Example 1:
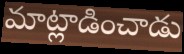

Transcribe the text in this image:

మాట్లాడించాడు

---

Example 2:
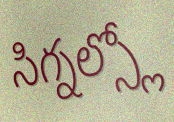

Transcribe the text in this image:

సిగ్నల్స్లో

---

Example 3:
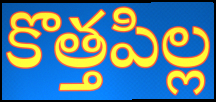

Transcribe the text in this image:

కొత్తపిల్ల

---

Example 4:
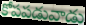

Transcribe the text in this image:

కోపపడువాడు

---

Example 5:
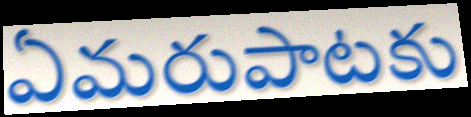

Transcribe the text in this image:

ఏమరుపాటకు